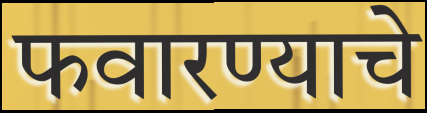
फवारण्याचे